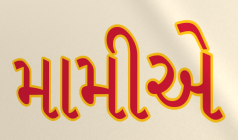
મામીએ